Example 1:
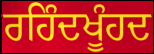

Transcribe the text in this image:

ਰਹਿੰਦਖੂੰਹਦ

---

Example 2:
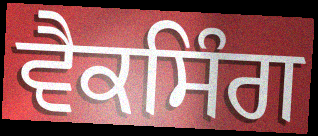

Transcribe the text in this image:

ਵੈਕਸਿੰਗ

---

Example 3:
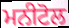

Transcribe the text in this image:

ਮਨੀਟੋਲ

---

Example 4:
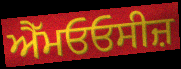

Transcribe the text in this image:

ਐੱਮਓਓਸੀਜ਼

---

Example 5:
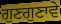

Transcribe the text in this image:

ਗੁਣਗੁਣਾਵੇ